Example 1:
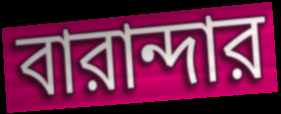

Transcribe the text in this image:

বারান্দার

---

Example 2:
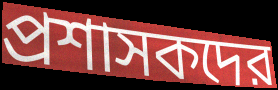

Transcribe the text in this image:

প্রশাসকদের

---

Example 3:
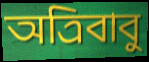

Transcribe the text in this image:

অত্রিবাবু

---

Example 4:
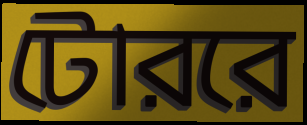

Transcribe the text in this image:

টোররে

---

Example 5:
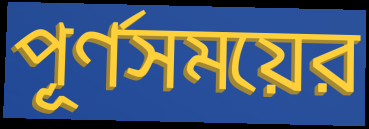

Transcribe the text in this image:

পূর্ণসময়ের